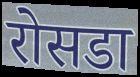
रोसडा